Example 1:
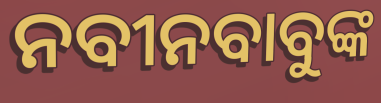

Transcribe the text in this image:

ନବୀନବାବୁଙ୍କ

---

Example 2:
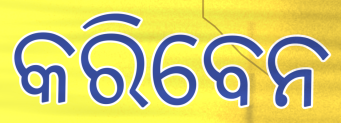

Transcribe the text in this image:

କରିବେନ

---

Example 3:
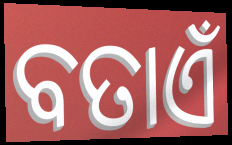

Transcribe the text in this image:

ବତାଏଁ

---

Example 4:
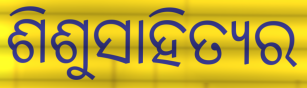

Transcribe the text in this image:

ଶିଶୁସାହିତ୍ୟର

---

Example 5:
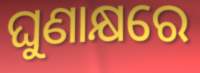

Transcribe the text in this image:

ଘୁଣାକ୍ଷରେ